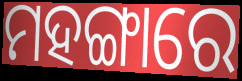
ମହଙ୍ଗାରେ